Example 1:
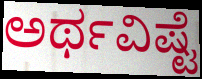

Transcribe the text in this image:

ಅರ್ಥವಿಷ್ಟೆ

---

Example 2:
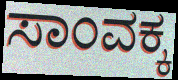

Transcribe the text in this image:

ಸಾಂವಕ್ಕ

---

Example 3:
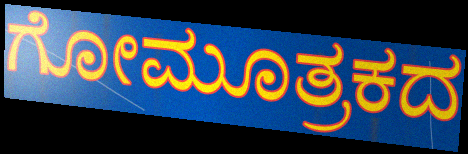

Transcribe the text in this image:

ಗೋಮೂತ್ರಕದ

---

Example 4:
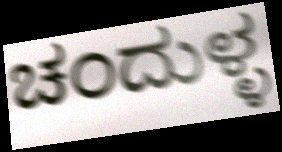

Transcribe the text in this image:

ಚಂದುಳ್ಳ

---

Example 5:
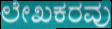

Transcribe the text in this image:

ಲೇಖಕರವು